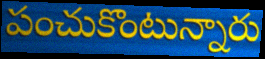
పంచుకొంటున్నారు